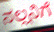
ನಲ್ಲನಿಗೆ